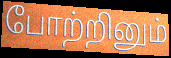
போற்றினும்